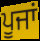
ਪੂਜਾਂ